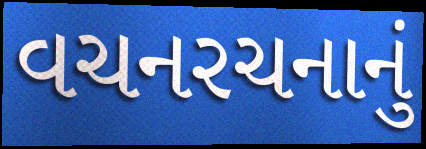
વચનરચનાનું